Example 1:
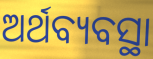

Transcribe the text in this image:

ଅର୍ଥବ୍ୟବସ୍ଥା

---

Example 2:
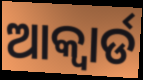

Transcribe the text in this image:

ଆକ୍ୱାର୍ଡ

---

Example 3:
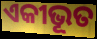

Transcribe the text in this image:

ଏକୀଭୂତ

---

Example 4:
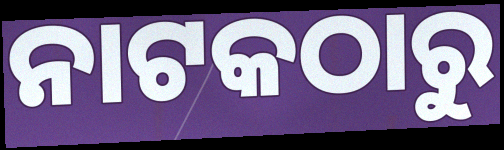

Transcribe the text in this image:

ନାଟକଠାରୁ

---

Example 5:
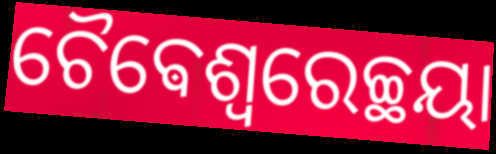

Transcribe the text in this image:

ଚୈଵେଶ୍ଵରେଚ୍ଛୟା